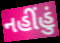
નહીંહું